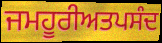
ਜਮਹੂਰੀਅਤਪਸੰਦ